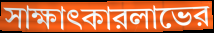
সাক্ষাৎকারলাভের